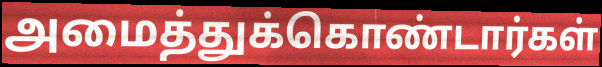
அமைத்துக்கொண்டார்கள்